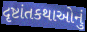
દૃષ્ટાંતકથાઓનું